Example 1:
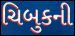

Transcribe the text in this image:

ચિબુકની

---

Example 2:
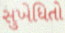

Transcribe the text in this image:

સુખેધિતો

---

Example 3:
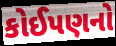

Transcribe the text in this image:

કોઈપણનો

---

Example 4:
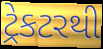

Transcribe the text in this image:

ટ્રેકટરથી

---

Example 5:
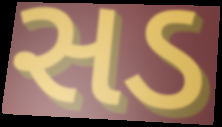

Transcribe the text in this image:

સડ